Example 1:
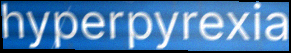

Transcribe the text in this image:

hyperpyrexia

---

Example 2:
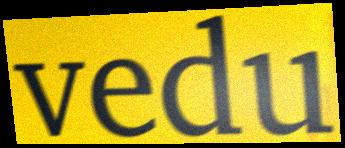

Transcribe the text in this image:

vedu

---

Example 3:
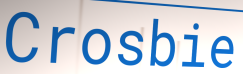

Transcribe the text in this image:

Crosbie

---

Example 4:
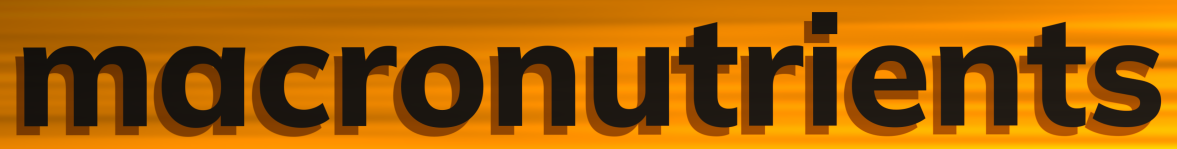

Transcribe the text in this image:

macronutrients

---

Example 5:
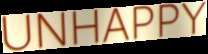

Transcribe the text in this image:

UNHAPPY